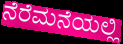
ನೆರೆಮನೆಯಲ್ಲಿ